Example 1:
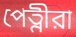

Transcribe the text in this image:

পেত্নীরা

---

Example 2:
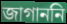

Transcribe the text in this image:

জাগাননি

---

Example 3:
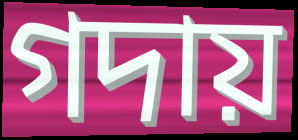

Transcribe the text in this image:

গদায়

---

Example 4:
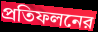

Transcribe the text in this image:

প্রতিফলনের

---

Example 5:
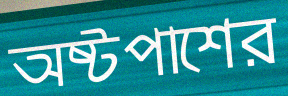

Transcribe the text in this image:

অষ্টপাশের